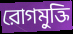
রোগমুক্তি